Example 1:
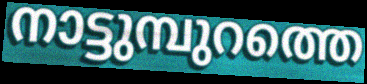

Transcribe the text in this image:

നാട്ടുമ്പുറത്തെ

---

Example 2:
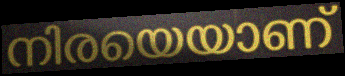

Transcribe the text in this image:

നിരയെയാണ്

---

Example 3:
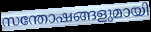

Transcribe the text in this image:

സന്തോഷങ്ങളുമായി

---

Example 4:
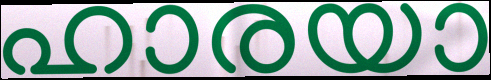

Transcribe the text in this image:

ഹാരയാ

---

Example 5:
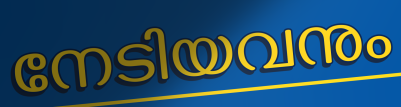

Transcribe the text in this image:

നേടിയവനും